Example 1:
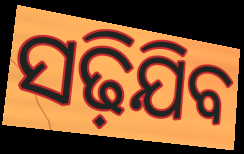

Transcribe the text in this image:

ସଢ଼ିଯିବ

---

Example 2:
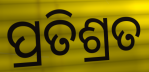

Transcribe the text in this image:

ପ୍ରତିଶ୍ରତ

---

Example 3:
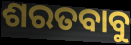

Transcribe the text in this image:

ଶରତବାବୁ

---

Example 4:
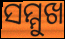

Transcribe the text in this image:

ସମ୍ମୁଖ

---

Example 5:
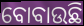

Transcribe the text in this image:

ବୋବାଉଛି